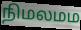
நிமலமம